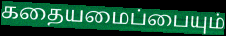
கதையமைப்பையும்